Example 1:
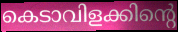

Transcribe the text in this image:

കെടാവിളക്കിന്റെ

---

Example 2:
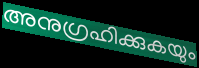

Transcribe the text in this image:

അനുഗ്രഹിക്കുകയും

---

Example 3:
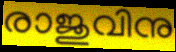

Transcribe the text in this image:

രാജുവിനു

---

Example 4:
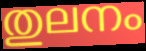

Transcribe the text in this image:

തുലനം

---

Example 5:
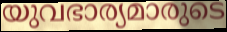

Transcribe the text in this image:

യുവഭാര്യമാരുടെ